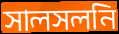
সালসলনি